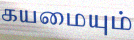
கயமையும்